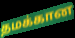
தமக்கான